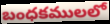
బంధకములలో